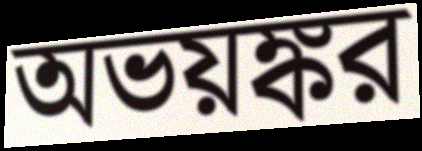
অভয়ঙ্কর